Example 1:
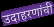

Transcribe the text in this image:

उदाहरणांची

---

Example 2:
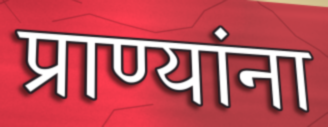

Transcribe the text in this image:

प्राण्यांना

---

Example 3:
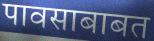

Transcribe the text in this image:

पावसाबाबत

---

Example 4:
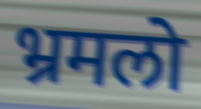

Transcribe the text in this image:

भ्रमलो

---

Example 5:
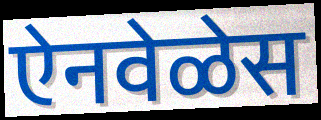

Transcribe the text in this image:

ऐनवेळेस